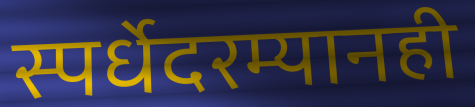
स्पर्धेदरम्यानही